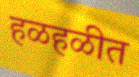
हळहळीत